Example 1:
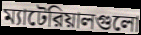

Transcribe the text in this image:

ম্যাটেরিয়ালগুলো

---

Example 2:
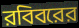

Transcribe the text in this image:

রবিবরের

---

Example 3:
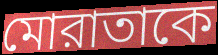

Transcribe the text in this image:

মোরাতাকে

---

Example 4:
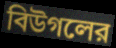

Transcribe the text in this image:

বিউগলের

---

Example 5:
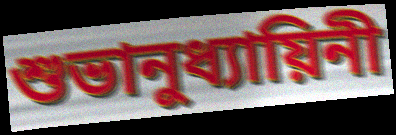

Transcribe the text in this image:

শুভানুধ্যায়িনী